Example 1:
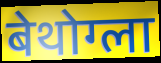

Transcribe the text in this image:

बेथोग्ला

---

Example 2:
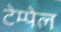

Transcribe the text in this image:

टेम्पेल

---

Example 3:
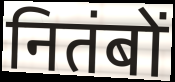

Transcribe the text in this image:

नितंबों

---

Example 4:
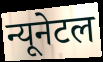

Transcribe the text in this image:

न्यूनेटल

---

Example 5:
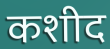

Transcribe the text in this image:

कशीद